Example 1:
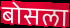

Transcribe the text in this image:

बोसला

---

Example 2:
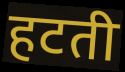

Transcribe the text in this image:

हटती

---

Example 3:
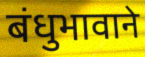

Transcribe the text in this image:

बंधुभावाने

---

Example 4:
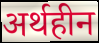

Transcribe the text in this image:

अर्थहीन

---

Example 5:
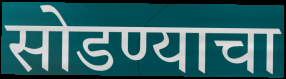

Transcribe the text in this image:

सोडण्याचा